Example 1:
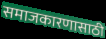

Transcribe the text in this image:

समाजकारणासाठी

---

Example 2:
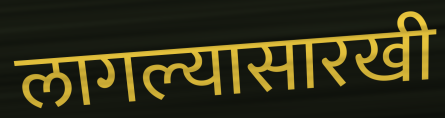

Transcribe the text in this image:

लागल्यासारखी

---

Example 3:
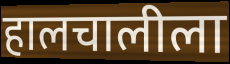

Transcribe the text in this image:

हालचालीला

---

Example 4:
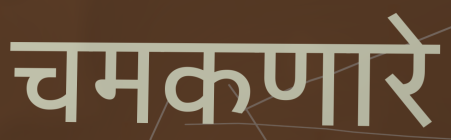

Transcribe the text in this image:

चमकणारे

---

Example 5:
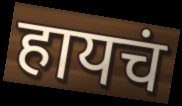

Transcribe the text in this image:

हायचं